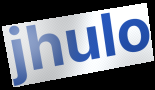
jhulo